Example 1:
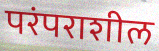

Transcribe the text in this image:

परंपराशील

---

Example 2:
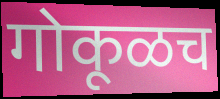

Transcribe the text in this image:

गोकूळच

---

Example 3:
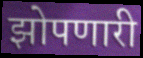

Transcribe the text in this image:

झोपणारी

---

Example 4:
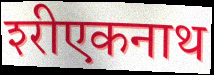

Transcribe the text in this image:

श्रीएकनाथ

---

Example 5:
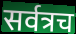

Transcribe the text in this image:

सर्वत्रच